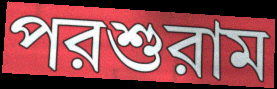
পরশুরাম